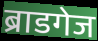
ब्राडगेज